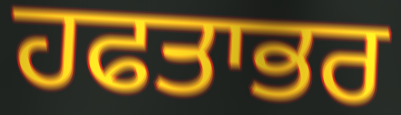
ਹਫਤਾਭਰ